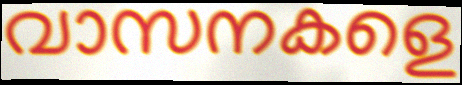
വാസനകളെ